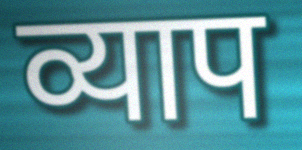
व्याप